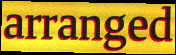
arranged